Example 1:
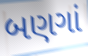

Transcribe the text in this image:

બણગાં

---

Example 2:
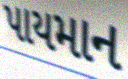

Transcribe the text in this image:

પાયમાન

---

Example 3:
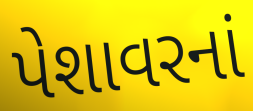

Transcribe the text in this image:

પેશાવરનાં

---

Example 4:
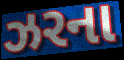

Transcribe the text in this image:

ઝરના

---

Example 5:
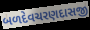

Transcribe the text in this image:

બળદેવચરણદાસજી